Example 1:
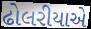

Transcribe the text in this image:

ઢોલરીયાએ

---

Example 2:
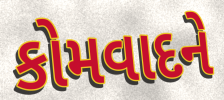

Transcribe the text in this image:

કોમવાદને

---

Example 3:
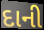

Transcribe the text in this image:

દાની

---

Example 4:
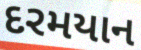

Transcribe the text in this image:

દરમયાન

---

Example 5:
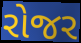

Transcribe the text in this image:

રોજર